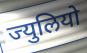
ज्युलियो